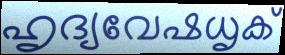
ഹൃദ്യവേഷധൃക്